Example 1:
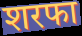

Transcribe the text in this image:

शरफा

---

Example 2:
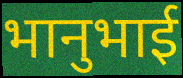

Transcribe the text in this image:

भानुभाई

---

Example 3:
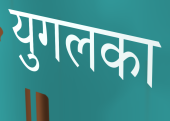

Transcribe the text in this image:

युगलका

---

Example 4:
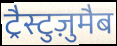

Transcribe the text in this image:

ट्रैस्टुज़ुमैब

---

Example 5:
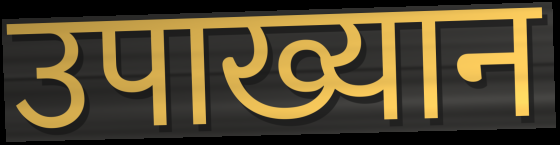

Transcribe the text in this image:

उपाख्यान